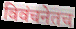
विवंचनेतच